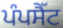
ਪੰਪਸੈੱਟ